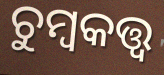
ଚୁମ୍ବକତ୍ତ୍ୱ